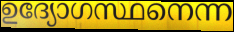
ഉദ്യോഗസ്ഥനെന്ന